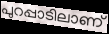
പുറപ്പാടിലാണ്